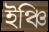
ইঞ্চি